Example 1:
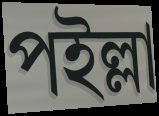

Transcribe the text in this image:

পইল্লা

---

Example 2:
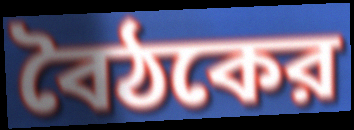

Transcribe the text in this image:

বৈঠকের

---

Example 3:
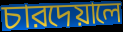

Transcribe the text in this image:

চারদেয়ালে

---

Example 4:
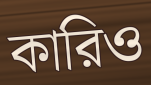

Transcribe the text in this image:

কারিও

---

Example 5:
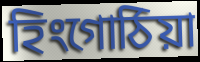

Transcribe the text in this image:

হিংগোঠিয়া